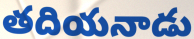
తదియనాడు